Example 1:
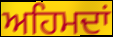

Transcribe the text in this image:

ਅਹਿਮਦਾਂ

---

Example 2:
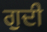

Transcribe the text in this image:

ਗੁਦੀ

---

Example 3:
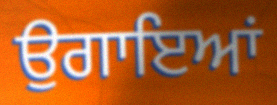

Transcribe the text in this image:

ਉਗਾਇਆਂ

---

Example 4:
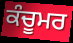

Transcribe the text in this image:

ਕੰਚੂਮਰ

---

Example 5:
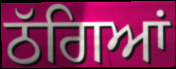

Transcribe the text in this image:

ਠੱਗਿਆਂ